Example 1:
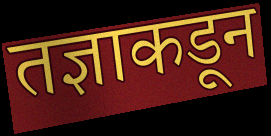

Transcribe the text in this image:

तज्ञाकडून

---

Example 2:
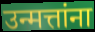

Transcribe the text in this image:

उन्मत्तांना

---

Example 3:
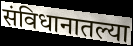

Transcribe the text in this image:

संविधानातल्या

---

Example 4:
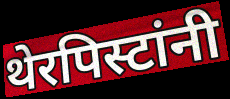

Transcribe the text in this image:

थेरपिस्टांनी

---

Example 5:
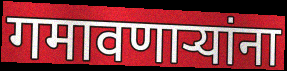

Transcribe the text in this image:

गमावणाऱ्यांना